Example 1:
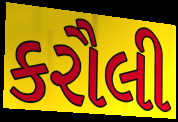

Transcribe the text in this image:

કરૌલી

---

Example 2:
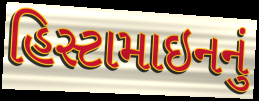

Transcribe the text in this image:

હિસ્ટામાઇનનું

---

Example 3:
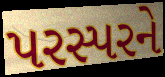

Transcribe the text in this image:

પરસ્પરને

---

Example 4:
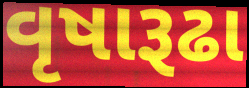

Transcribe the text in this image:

વૃષારૂઢા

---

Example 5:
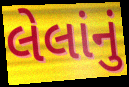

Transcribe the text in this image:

લેલાંનું